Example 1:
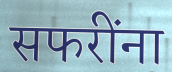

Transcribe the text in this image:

सफरींना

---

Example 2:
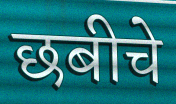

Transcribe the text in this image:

छबीचे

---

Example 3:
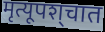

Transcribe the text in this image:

मृत्यूपश्चात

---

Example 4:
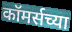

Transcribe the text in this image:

कॉमर्सच्या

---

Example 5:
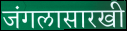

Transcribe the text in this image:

जंगलासारखी